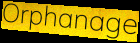
Orphanage